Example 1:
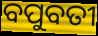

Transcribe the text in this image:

ବପୁବତୀ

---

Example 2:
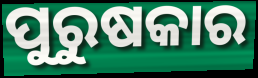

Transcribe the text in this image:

ପୁରୁଷକାର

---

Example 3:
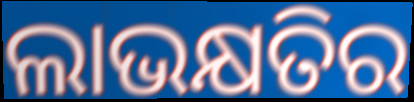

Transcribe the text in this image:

ଲାଭକ୍ଷତିର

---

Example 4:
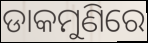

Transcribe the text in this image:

ଡାକମୁଣିରେ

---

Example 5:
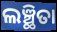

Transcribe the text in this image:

ଲଞ୍ଛିତା